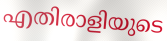
എതിരാളിയുടെ